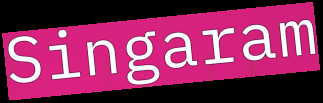
Singaram